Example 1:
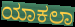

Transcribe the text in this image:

ಯಾಕಲಾ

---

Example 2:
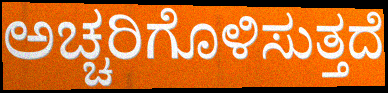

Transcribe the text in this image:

ಅಚ್ಚರಿಗೊಳಿಸುತ್ತದೆ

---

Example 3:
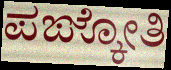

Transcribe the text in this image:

ಪಙ್ಕೋತಿ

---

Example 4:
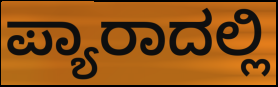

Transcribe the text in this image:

ಪ್ಯಾರಾದಲ್ಲಿ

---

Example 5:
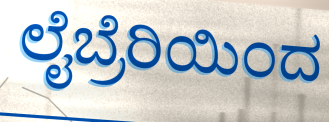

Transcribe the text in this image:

ಲೈಬ್ರೆರಿಯಿಂದ